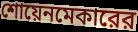
শোয়েনমেকারের